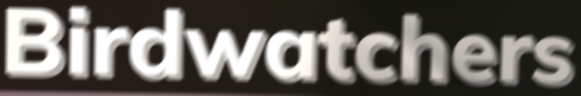
Birdwatchers